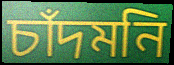
চাঁদমনি